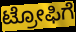
ಟ್ರೋಫಿಗೆ